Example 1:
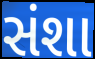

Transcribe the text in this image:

સંશા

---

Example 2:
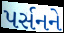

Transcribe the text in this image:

પર્સનને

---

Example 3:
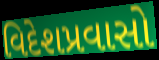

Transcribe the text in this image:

વિદેશપ્રવાસો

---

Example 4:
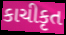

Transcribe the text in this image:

કાચીકૃત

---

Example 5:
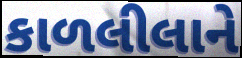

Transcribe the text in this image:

કાળલીલાને